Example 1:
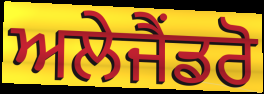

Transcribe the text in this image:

ਅਲੇਜੈਂਡਰੋ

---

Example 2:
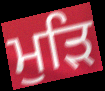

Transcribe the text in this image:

ਮੁੜਿ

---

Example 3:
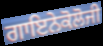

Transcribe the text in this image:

ਗਾਇਨੇਕੋਲੋਜੀ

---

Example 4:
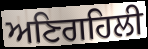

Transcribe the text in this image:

ਅਣਿਗਹਿਲੀ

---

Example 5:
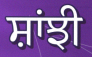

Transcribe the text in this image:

ਸ਼ਾਂਝੀ